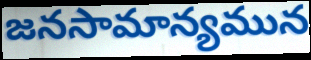
జనసామాన్యమున